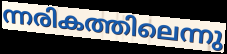
ന്നരികത്തിലെന്നു